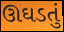
ઊઘડતું